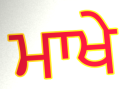
ਮਾਖੇ